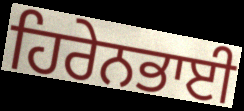
ਹਿਰੇਨਭਾਈ